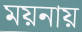
ময়নায়